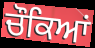
ਚੌਕਿਆਂ